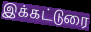
இக்கட்டுரை